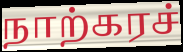
நாற்கரச்